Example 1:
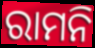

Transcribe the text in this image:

ରାମନି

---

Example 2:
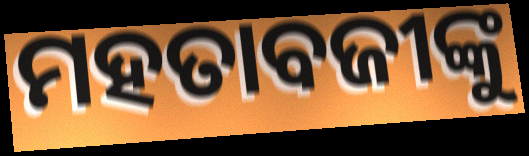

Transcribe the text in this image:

ମହତାବଜୀଙ୍କୁ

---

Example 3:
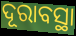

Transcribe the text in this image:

ଦୂରାବସ୍ଥା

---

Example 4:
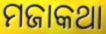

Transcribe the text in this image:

ମଜାକଥା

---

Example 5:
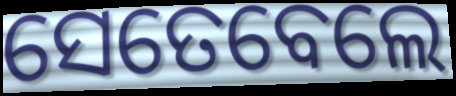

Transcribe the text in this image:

ସେତେବେଲେ